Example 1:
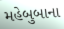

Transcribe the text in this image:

મહેબુબાના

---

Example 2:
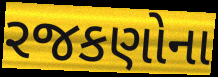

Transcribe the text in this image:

રજકણોના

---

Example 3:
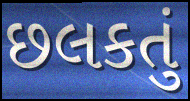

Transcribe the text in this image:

છલકતું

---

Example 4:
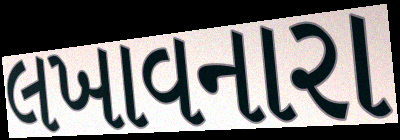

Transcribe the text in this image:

લખાવનારા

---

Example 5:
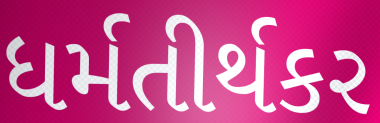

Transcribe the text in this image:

ધર્મતીર્થકર